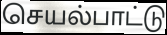
செயல்பாட்டு